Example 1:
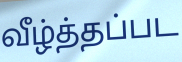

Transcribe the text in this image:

வீழ்த்தப்பட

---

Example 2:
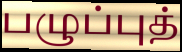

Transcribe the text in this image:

பழுப்புத்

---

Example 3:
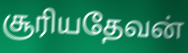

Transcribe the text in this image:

சூரியதேவன்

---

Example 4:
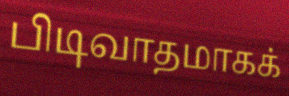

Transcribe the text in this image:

பிடிவாதமாகக்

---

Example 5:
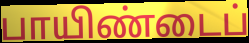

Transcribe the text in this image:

பாயிண்டைப்